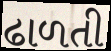
ઢાળતી